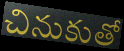
చినుకుతో